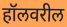
हॉलवरील